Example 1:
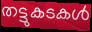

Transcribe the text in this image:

തട്ടുകടകൾ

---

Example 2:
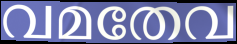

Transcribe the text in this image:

വമതേവ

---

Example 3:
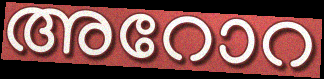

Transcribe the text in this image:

അറോറ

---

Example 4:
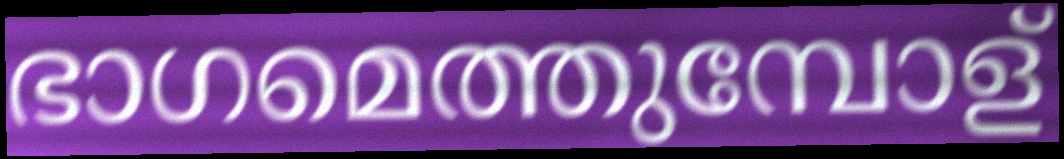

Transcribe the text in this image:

ഭാഗമെത്തുമ്പോള്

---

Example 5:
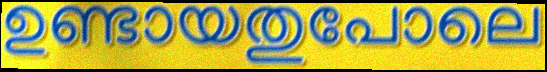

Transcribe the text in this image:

ഉണ്ടായതുപോലെ